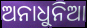
ଅନାଧୁନିଆ